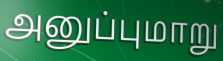
அனுப்புமாறு